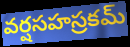
వర్షసహస్రకమ్